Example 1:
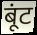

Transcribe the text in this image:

बूंट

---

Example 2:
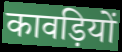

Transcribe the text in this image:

कावड़ियों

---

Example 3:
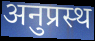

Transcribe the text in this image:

अनुप्रस्थ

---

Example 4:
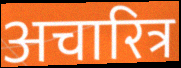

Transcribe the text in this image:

अचारित्र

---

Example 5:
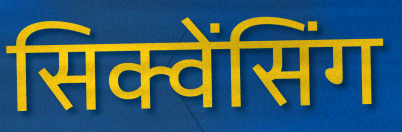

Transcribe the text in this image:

सिक्वेंसिंग